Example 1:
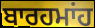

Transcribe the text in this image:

ਬਾਰਹਮਾਂਹ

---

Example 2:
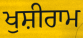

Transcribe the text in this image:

ਖੁਸ਼ੀਰਾਮ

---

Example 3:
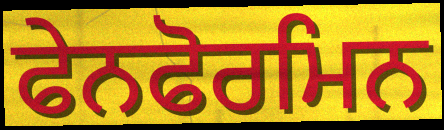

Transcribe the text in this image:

ਫੇਨਫੋਰਮਿਨ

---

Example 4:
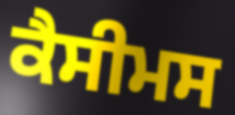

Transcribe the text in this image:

ਕੈਸੀਮਸ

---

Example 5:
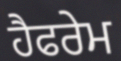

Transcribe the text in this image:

ਹੈਫਰੇਮ